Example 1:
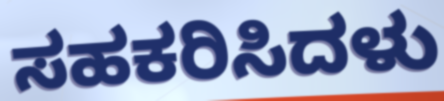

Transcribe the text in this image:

ಸಹಕರಿಸಿದಳು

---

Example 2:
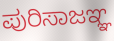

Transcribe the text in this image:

ಪುರಿಸಾಜಞ್ಞ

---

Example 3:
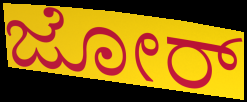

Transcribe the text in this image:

ಜೋರ್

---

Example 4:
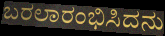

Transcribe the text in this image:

ಬರಲಾರಂಭಿಸಿದನು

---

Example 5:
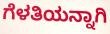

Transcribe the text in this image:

ಗೆಳತಿಯನ್ನಾಗಿ